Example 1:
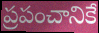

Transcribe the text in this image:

ప్రపంచానికే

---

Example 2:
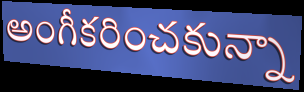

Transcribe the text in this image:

అంగీకరించకున్నా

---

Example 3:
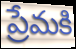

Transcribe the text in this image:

ప్రేమకి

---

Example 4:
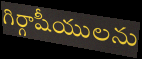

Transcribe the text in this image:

గిర్గాషీయులను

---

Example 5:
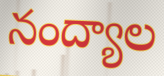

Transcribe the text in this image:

నంద్యాల